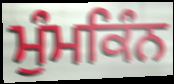
ਮੁੰਮਕਿੰਨ